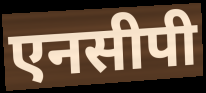
एनसीपी